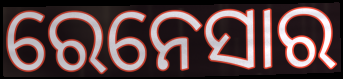
ରେନେସାର